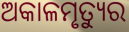
ଅକାଳମୃତ୍ୟୁର